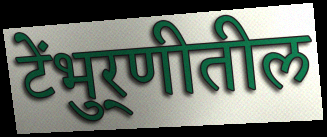
टेंभुर्णीतील